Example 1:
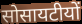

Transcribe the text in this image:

सोसायटीयों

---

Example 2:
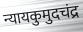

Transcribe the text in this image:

न्यायकुमुदचंद्र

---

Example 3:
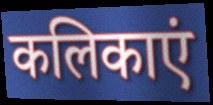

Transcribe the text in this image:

कलिकाएं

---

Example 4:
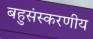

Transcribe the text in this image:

बहुसंस्करणीय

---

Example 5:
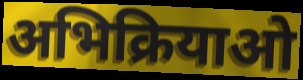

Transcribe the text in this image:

अभिक्रियाओ